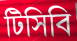
টিসিবি